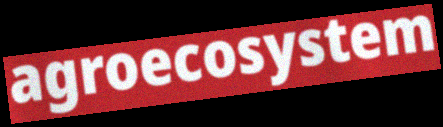
agroecosystem